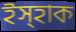
ইস্‌হাক